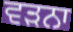
ਵੜਨਾ